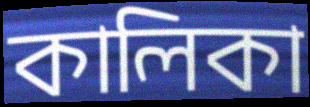
কালিকা